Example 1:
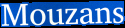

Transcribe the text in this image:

Mouzans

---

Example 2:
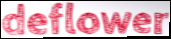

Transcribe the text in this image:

deflower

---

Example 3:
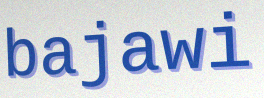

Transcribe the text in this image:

bajawi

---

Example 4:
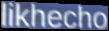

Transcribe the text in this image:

likhecho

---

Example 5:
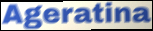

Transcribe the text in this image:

Ageratina